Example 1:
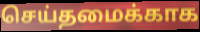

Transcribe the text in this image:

செய்தமைக்காக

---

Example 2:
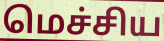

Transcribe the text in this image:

மெச்சிய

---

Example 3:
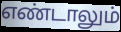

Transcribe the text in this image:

எண்டாலும்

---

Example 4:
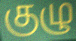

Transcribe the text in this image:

குழு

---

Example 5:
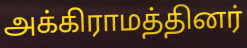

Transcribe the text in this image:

அக்கிராமத்தினர்